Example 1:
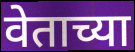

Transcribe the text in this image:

वेताच्या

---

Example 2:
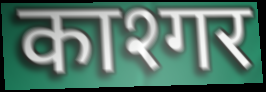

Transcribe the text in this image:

काश्गर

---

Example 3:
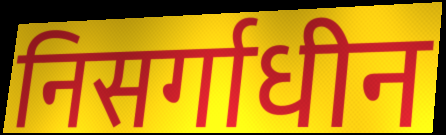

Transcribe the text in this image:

निसर्गाधीन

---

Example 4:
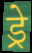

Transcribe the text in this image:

ड्रे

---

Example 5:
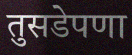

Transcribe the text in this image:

तुसडेपणा